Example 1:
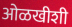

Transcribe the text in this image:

ओळखीशी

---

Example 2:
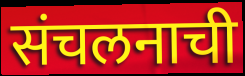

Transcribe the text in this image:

संचलनाची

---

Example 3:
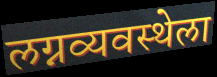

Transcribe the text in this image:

लग्नव्यवस्थेला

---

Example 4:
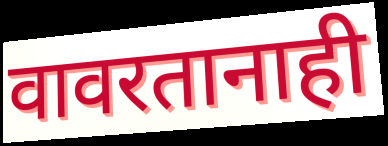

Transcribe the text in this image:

वावरतानाही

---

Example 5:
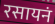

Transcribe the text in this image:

रसायनं